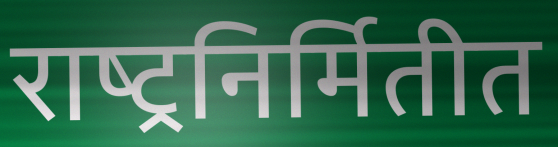
राष्ट्रनिर्मितीत